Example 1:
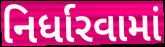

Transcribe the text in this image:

નિર્ધારવામાં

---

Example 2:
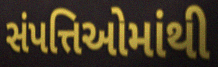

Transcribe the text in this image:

સંપત્તિઓમાંથી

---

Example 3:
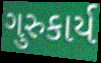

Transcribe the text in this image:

ગુરુકાર્ય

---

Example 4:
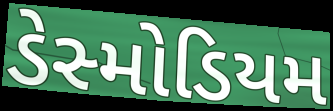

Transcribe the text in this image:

ડેસ્મોડિયમ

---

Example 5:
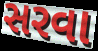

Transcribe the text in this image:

સરવા